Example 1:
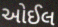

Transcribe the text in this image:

ઓઈલ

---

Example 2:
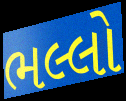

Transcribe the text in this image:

ભલ્લો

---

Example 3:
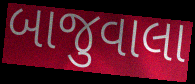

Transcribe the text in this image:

બાજુવાલા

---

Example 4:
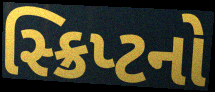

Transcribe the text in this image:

સ્ક્રિપ્ટનો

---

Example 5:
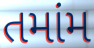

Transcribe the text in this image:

તમાંમ